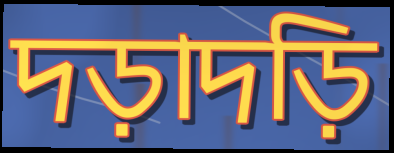
দড়াদড়ি